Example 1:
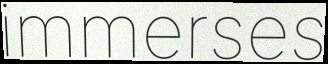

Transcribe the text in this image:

immerses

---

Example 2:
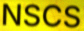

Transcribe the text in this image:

NSCS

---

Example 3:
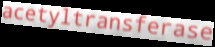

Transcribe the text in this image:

acetyltransferase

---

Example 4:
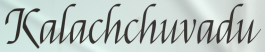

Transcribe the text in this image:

Kalachchuvadu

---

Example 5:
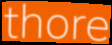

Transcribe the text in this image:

thore